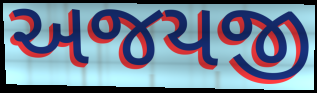
અજયજી